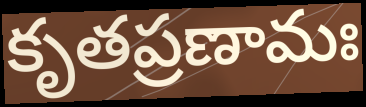
కృతప్రణామః